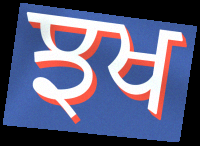
ਝਖ